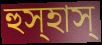
হুস্হাস্